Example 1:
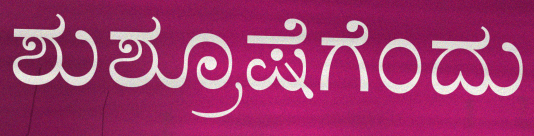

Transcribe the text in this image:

ಶುಶ್ರೂಷೆಗೆಂದು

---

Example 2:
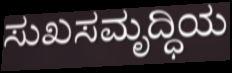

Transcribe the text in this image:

ಸುಖಸಮೃದ್ಧಿಯ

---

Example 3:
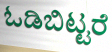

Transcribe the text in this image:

ಓಡಿಬಿಟ್ಟರೆ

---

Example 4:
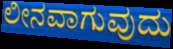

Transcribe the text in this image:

ಲೀನವಾಗುವುದು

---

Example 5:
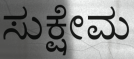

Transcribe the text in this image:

ಸುಕ್ಷೇಮ